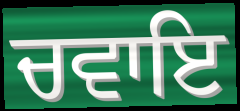
ਚਵਾਇ